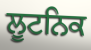
ਲੂਟਨਿਕ